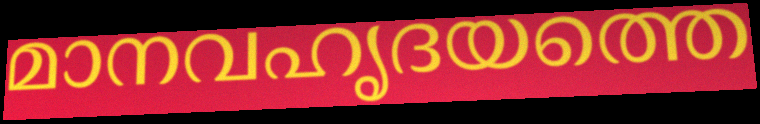
മാനവഹൃദയത്തെ